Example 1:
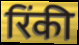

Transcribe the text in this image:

रिंकी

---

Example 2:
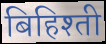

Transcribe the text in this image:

बिहिश्ती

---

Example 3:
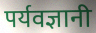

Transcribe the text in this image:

पर्यवज्ञानी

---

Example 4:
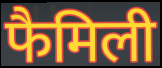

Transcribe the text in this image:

फैमिली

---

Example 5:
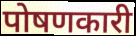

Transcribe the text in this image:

पोषणकारी